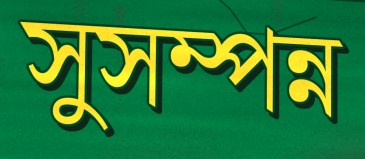
সুসম্পন্ন